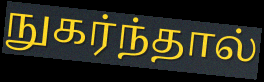
நுகர்ந்தால்